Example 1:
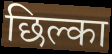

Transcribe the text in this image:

छिल्का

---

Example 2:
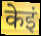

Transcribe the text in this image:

केइं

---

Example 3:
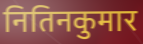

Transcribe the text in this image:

नितिनकुमार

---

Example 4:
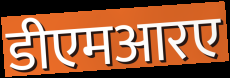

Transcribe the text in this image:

डीएमआरए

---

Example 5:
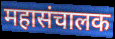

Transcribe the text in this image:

महासंचालक